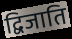
द्विजाति